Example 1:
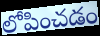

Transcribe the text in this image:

లోపించడం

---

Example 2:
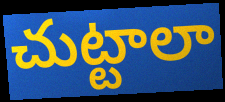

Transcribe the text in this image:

చుట్టాలా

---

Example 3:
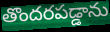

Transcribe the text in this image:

తొందరపడ్డాను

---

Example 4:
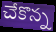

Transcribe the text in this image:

చేకొన్న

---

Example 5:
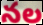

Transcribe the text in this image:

నల